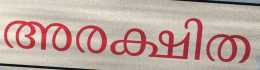
അരക്ഷിത